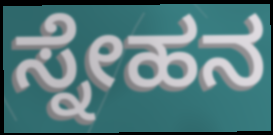
ಸ್ನೇಹನ